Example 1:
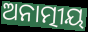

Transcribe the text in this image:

ଅନାତ୍ମୀୟ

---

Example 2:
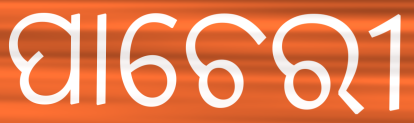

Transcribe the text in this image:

ପାଚେରୀ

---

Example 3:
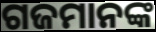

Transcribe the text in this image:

ଗଜମାନଙ୍କ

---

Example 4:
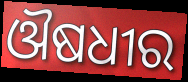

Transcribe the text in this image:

ଔଷଧୀର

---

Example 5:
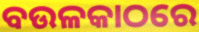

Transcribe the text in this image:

ବଉଳକାଠରେ